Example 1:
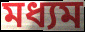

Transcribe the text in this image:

মধ্যম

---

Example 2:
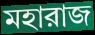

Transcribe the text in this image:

মহারাজ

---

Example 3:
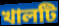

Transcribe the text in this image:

খালটি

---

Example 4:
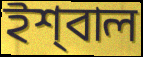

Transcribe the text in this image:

ইশ্‌বাল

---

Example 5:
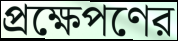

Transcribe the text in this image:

প্রক্ষেপণের